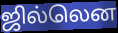
ஜில்லென